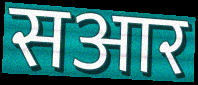
सआर